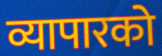
व्यापारको